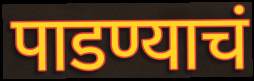
पाडण्याचं